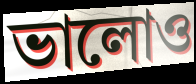
ভালোও